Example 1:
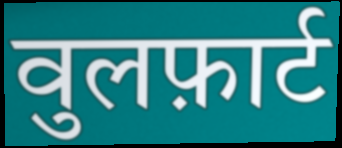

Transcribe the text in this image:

वुलफ़ार्ट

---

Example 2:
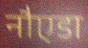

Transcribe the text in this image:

नौएडा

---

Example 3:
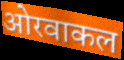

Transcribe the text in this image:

ओरवाकल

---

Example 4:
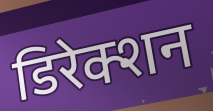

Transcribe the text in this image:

डिरेक्शन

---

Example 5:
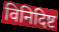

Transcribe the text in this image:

विनिदिष्ट